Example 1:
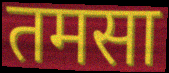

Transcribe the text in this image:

तमसा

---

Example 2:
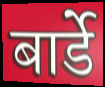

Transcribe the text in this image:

बार्डे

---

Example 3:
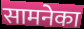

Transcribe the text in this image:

सामनेका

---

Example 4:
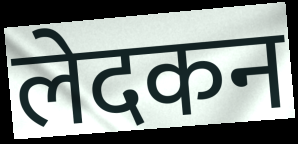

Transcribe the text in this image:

लेदकन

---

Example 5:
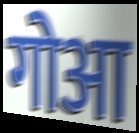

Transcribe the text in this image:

गोआ